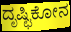
ದೃಷ್ಟಿಕೋನ